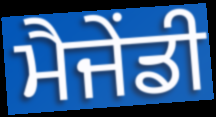
ਮੈਜੇਂਡੀ